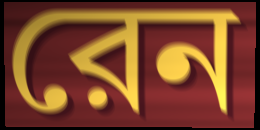
রেন